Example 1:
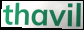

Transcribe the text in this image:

thavil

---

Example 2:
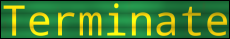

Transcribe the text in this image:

Terminate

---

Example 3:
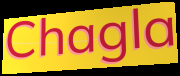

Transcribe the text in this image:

Chagla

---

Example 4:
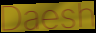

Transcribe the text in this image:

Daesh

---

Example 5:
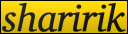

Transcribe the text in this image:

sharirik